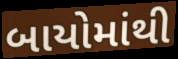
બાયોમાંથી